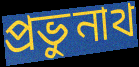
প্রভুনাথ